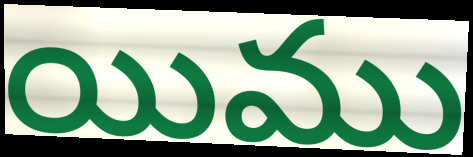
యిము